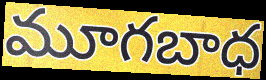
మూగబాధ